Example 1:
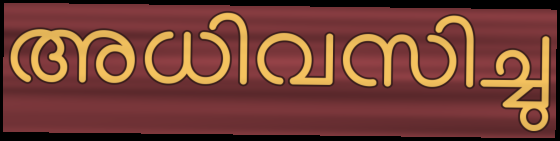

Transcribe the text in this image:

അധിവസിച്ചു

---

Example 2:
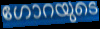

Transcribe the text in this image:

ഗോറയുടെ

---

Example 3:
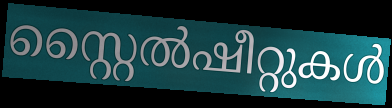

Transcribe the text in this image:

സ്റ്റൈൽഷീറ്റുകൾ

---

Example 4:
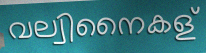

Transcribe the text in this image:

വല്വിനൈകള്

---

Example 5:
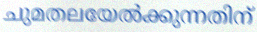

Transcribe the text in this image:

ചുമതലയേൽക്കുന്നതിന്